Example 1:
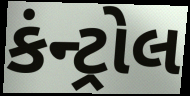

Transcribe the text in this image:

કંન્ટ્રોલ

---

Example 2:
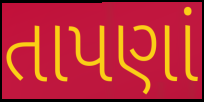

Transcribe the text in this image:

તાપણાં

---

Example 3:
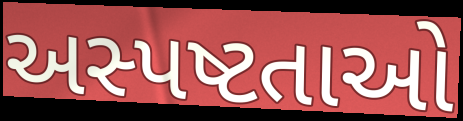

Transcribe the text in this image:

અસ્પષ્ટતાઓ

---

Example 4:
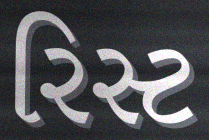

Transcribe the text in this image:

રિસ્ટ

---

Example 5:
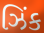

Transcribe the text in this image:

ઝિંક